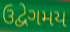
ઉદ્વેગમય